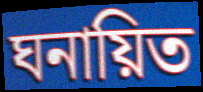
ঘনায়িত